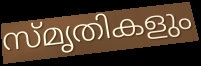
സ്മൃതികളും